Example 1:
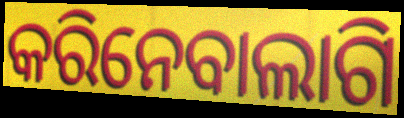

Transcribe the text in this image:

କରିନେବାଲାଗି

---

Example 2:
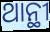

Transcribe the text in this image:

ଥାନ୍ଥୀ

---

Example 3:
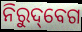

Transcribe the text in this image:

ନିରୁଦ୍‌ବେଗ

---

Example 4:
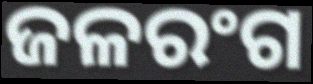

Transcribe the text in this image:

ଜଳରଂଗ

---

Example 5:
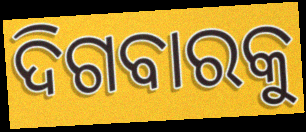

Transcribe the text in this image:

ଦିଗବାରକୁ